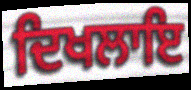
ਦਿਖਲਾਇ